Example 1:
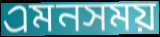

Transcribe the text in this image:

এমনসময়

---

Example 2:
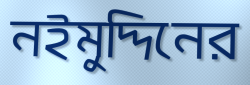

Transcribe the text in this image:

নইমুদ্দিনের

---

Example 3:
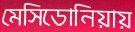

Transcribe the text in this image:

মেসিডোনিয়ায়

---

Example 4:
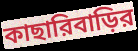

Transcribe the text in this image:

কাছারিবাড়ির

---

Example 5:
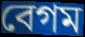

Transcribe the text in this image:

বেগম